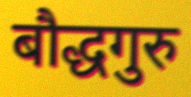
बौद्धगुरु